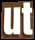
ut